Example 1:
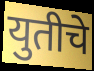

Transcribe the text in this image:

युतीचे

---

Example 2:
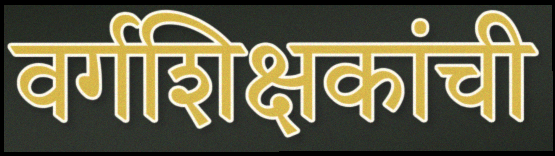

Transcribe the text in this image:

वर्गशिक्षकांची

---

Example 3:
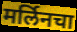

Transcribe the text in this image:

मर्लिनचा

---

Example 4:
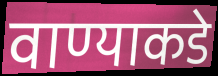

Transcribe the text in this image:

वाण्याकडे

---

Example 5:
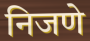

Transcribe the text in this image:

निजणे